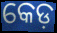
କେଡ଼